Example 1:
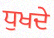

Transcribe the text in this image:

ਧੁਖਦੇ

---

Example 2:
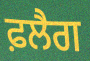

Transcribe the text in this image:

ਫ਼ਲੈਗ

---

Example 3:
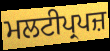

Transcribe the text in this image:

ਮਲਟੀਪ੍ਰਪਜ਼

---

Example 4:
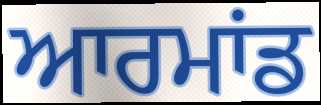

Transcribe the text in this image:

ਆਰਮਾਂਡ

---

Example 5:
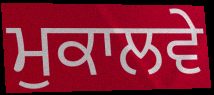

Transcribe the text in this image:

ਮੁਕਾਲਵੇ